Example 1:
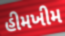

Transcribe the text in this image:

હીમખીમ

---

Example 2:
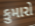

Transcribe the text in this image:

કુમારો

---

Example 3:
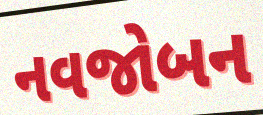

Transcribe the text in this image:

નવજોબન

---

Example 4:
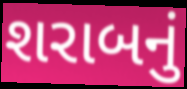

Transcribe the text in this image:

શરાબનું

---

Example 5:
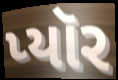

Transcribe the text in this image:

પ્યૉર